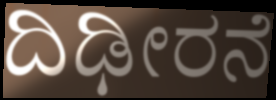
ದಿಢೀರನೆ